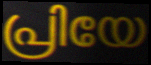
പ്രിയേ